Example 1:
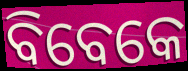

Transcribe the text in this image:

ବିବେକେ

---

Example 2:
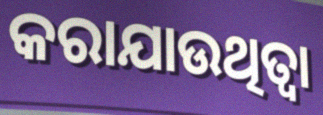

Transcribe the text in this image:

କରାଯାଉଥିତ୍ବା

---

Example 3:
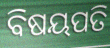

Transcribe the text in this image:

ବିଷୟପତି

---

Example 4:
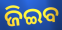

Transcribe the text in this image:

ଜିଇବ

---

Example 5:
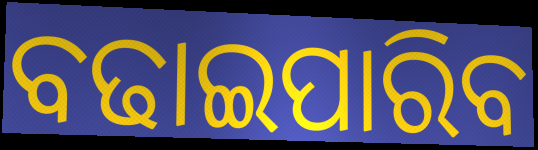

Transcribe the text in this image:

ବଢାଇପାରିବ